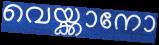
വെയ്ക്കാനോ